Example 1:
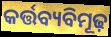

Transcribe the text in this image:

କର୍ତ୍ତବ୍ୟବିମୂଢ଼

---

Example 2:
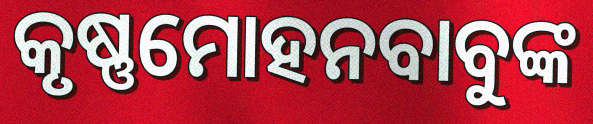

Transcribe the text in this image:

କୃଷ୍ଣମୋହନବାବୁଙ୍କ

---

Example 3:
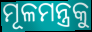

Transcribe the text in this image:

ମୂଳମନ୍ତ୍ରକୁ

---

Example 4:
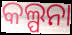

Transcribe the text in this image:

କଲ୍ପନା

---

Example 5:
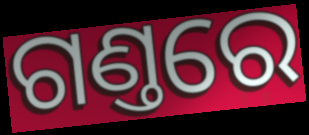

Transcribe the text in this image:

ଗଣ୍ତରେ